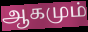
ஆகமும்